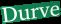
Durve